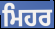
ਮਿਹਰ